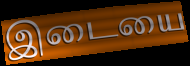
இடையை